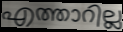
എത്താറില്ല